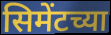
सिमेंटच्या